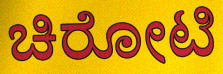
ಚಿರೋಟಿ